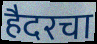
हैदरचा